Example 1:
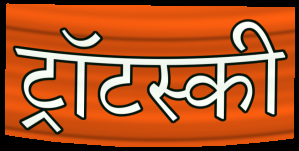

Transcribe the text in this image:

ट्रॉटस्की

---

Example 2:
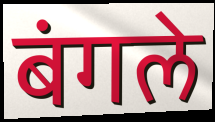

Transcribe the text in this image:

बंगले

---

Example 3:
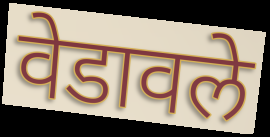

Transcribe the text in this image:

वेडावले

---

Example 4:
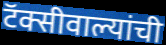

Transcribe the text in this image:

टॅक्सीवाल्यांची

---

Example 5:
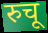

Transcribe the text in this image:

रुचू